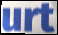
urt